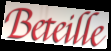
Beteille